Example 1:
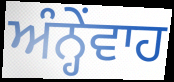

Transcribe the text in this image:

ਅੰਨ੍ਹੇਂਵਾਹ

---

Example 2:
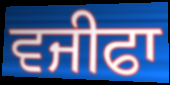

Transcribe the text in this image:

ਵਜੀਫਾ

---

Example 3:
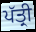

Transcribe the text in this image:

ਪੱਤ੍ਰੀ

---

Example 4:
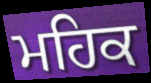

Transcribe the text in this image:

ਮਹਿਕ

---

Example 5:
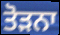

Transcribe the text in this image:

ਤੋੜਨਾ